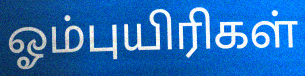
ஓம்புயிரிகள்